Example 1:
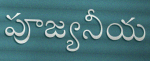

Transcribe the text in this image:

పూజ్యనీయ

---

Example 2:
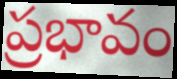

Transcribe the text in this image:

ప్రభావం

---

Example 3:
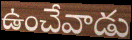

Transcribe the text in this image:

ఉంచేవాడు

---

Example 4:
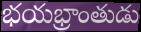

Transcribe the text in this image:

భయభ్రాంతుడు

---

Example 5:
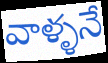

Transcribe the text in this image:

వాళ్ళనే